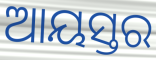
ଆୟସ୍ତର